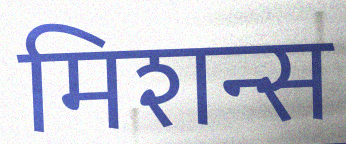
मिशन्स